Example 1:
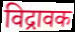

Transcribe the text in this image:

विद्रावक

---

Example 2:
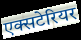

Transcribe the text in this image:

एक्सटेरियर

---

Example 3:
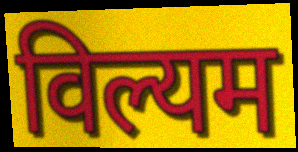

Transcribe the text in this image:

विल्यम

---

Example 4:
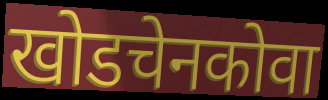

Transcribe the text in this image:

खोडचेनकोवा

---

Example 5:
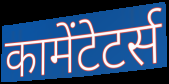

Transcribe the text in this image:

कामेंटेटर्स